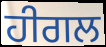
ਹੀਗਲ